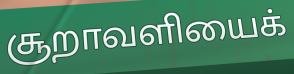
சூறாவளியைக்